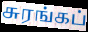
சுரங்கப்